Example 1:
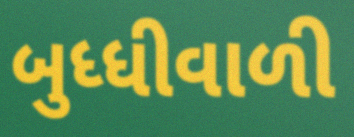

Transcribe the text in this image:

બુધ્ધીવાળી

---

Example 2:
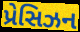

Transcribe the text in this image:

પ્રેસિઝન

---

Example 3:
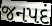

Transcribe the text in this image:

જનપદં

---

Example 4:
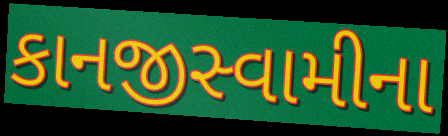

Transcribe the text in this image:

કાનજીસ્વામીના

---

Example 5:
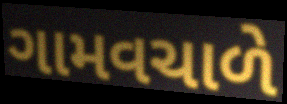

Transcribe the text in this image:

ગામવચાળે